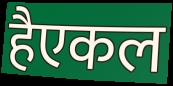
हैएकल